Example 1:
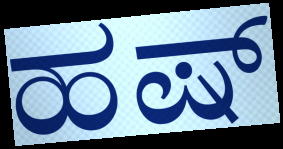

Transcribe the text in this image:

ಹಷ್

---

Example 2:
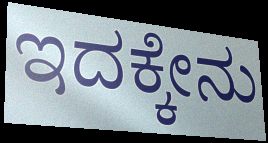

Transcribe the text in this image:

ಇದಕ್ಕೇನು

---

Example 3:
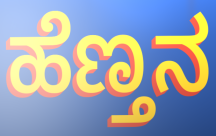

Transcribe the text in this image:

ಹೆಣ್ತನ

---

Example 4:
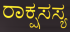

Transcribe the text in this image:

ರಾಕ್ಷಸಸ್ಯ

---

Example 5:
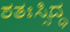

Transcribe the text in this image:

ಶತಃಸ್ಸಿದ್ಧ